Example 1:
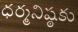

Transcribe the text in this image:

ధర్మనిష్ఠకు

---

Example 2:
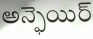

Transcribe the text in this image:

అన్ఫెయిర్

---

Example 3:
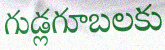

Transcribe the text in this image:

గుడ్లగూబలకు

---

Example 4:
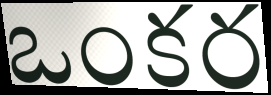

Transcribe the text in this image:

ఒంకర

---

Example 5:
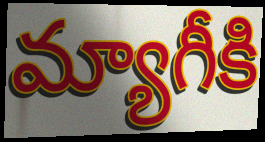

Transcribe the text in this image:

మ్యాగీకి